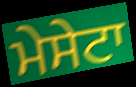
ਮੇਸੇਟਾ